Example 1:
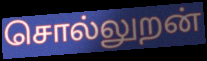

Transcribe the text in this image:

சொல்லுறன்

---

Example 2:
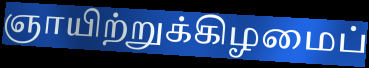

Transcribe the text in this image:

ஞாயிற்றுக்கிழமைப்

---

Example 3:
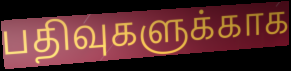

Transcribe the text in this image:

பதிவுகளுக்காக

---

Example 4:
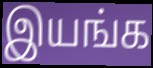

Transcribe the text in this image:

இயங்க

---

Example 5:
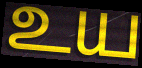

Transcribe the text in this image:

உய